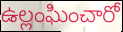
ఉల్లంఘించారో